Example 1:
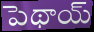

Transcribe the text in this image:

పెథాయ్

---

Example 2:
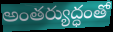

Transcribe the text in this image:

అంతర్యుద్ధంతో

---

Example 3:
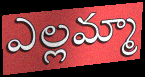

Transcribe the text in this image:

ఎల్లమ్మా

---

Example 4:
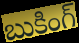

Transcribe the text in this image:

బుకింగ్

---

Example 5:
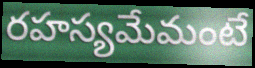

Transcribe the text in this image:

రహస్యమేమంటే